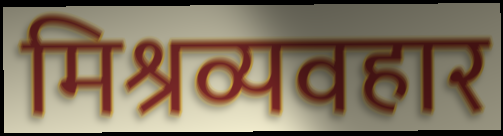
मिश्रव्यवहार